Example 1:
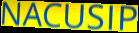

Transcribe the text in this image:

NACUSIP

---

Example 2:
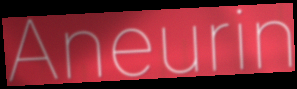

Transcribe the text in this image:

Aneurin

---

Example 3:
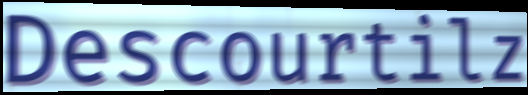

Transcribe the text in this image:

Descourtilz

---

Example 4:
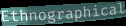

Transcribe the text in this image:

Ethnographical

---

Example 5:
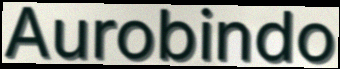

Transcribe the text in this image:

Aurobindo